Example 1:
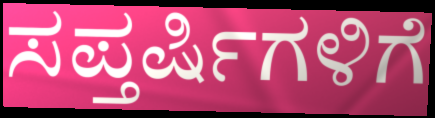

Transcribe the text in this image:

ಸಪ್ತರ್ಷಿಗಳಿಗೆ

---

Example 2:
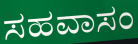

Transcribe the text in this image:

ಸಹವಾಸಂ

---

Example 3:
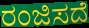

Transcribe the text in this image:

ರಂಜಿಸದೆ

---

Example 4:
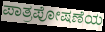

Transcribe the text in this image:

ಪಾತ್ರಪೋಷಣೆಯ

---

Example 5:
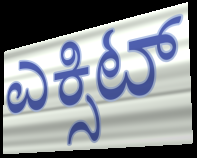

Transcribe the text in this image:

ಎಕ್ಸಿಟ್